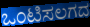
ಒಂಟಿಸಲಗದ